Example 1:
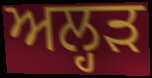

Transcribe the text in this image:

ਅਲ੍ਹੜ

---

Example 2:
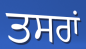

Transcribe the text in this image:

ਤਸਰਾਂ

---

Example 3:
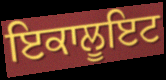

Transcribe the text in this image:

ਇਕਾਲੂਇਟ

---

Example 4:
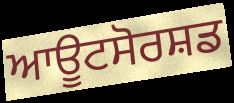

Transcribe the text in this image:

ਆਊਟਸੋਰਸ਼ਡ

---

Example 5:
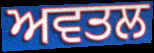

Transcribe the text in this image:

ਅਵਤਲ